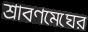
শ্রাবণমেঘের